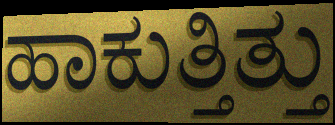
ಹಾಕುತ್ತಿತ್ತು